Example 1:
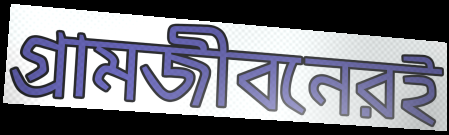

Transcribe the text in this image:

গ্রামজীবনেরই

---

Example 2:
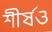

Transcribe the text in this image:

শীর্ষও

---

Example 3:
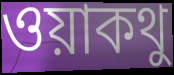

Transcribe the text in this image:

ওয়াকথু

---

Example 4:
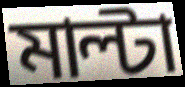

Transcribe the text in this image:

মাল্টা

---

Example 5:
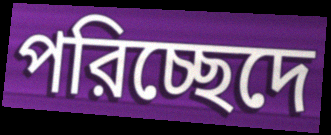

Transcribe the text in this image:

পরিচ্ছেদে